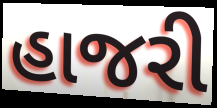
હાજરી